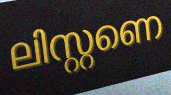
ലിസ്റ്റണെ